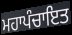
ਮਹਾਪੰਚਾਇਤ